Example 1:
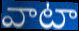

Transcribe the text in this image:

వాటా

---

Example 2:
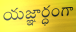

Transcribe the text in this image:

యజ్ఞార్ధంగా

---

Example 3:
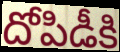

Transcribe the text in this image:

దోపిడీకి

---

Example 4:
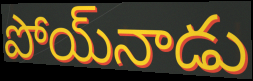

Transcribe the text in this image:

పోయ్‌నాడు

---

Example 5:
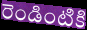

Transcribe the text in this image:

రెండింటికి